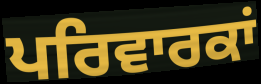
ਪਰਿਵਾਰਕਾਂ